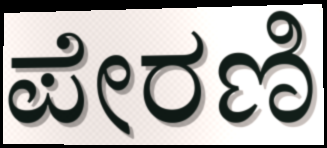
ಪೇರಣಿ